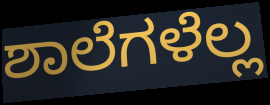
ಶಾಲೆಗಳೆಲ್ಲ